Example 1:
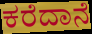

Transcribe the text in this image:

ಕರೆದಾನೆ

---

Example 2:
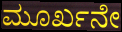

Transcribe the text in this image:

ಮೂರ್ಖನೇ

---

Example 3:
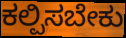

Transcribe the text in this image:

ಕಲ್ಪಿಸಬೇಕು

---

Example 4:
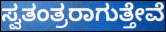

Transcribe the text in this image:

ಸ್ವತಂತ್ರರಾಗುತ್ತೇವೆ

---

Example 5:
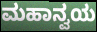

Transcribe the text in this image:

ಮಹಾನ್ವಯ